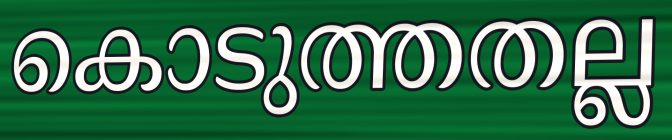
കൊടുത്തതല്ല